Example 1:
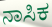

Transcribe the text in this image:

ನಾಸಿಕ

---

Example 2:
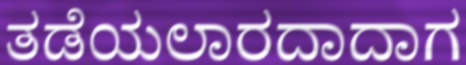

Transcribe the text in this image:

ತಡೆಯಲಾರದಾದಾಗ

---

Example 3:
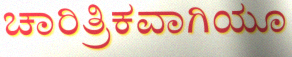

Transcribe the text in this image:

ಚಾರಿತ್ರಿಕವಾಗಿಯೂ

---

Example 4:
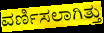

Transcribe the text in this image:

ವರ್ಣಿಸಲಾಗಿತ್ತು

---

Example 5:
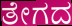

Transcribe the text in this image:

ತೇಗದ